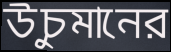
উচুমানের